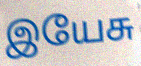
இயேசு